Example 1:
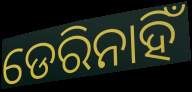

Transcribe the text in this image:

ଡେରିନାହିଁ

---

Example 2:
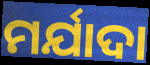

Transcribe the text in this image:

ମର୍ଯାଦା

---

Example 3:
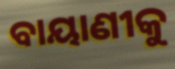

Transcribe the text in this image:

ବାୟାଣୀକୁ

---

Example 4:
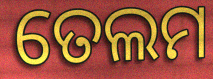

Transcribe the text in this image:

ତେଲମ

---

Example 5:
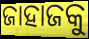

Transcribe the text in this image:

ଜାହାଜକୁ